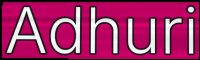
Adhuri